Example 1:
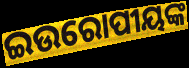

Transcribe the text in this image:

ଇଉରୋପୀୟଙ୍କ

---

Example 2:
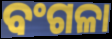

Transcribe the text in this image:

ବଂଗଳା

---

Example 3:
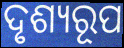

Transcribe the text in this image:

ଦୃଶ୍ୟରୂପ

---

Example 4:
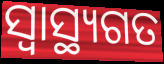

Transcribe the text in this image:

ସ୍ବାସ୍ଥ୍ୟଗତ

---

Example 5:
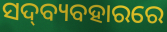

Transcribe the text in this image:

ସଦ୍‍ବ୍ୟବହାରରେ